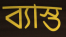
ব্যাস্ত